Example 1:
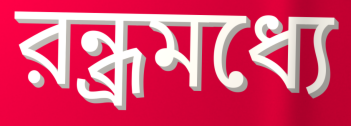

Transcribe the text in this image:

রন্ধ্রমধ্যে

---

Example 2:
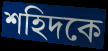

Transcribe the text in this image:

শহিদকে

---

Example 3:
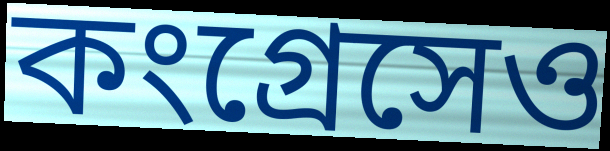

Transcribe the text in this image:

কংগ্রেসেও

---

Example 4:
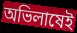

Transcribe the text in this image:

অভিলাষেই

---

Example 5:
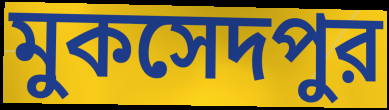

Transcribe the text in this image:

মুকসেদপুর